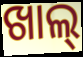
ଖାଲ୍